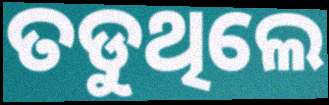
ତଡୁଥିଲେ